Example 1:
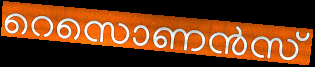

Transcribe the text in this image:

റെസൊണൻസ്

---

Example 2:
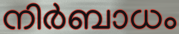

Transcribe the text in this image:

നിർബാധം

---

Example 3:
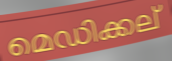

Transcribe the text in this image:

മെഡിക്കല്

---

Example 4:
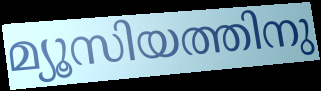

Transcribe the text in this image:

മ്യൂസിയത്തിനു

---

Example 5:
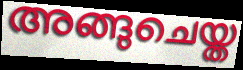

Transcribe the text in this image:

അങ്ങുചെയ്ത